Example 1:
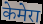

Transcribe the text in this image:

केमेरा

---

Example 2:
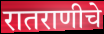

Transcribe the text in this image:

रातराणीचे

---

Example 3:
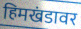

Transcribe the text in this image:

हिमखंडावर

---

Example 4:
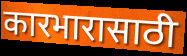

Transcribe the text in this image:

कारभारासाठी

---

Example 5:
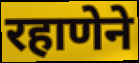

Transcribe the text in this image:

रहाणेने